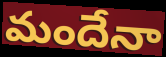
మందేనా